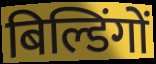
बिल्डिंगों